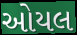
ઓયલ